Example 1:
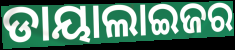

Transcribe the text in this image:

ଡାୟାଲାଇଜର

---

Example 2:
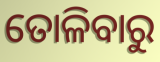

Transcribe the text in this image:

ତୋଳିବାରୁ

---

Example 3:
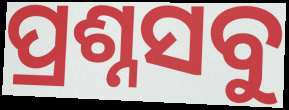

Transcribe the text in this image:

ପ୍ରଶ୍ନସବୁ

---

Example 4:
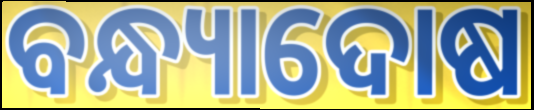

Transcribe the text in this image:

ବନ୍ଧ୍ୟାଦୋଷ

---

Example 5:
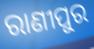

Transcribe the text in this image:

ରାଣୀପୁର